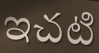
ఇచటి